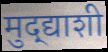
मुद्द्याशी